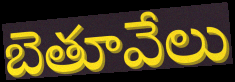
బెతూవేలు